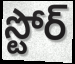
స్టోర్